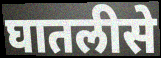
घातलीसे